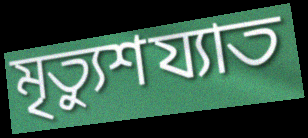
মৃত্যুশয্যাত